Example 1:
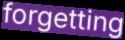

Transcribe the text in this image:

forgetting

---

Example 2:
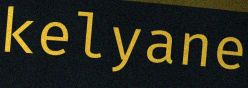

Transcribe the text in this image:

kelyane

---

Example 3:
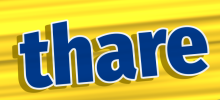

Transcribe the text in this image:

thare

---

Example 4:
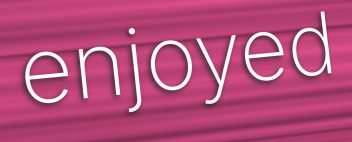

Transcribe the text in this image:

enjoyed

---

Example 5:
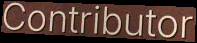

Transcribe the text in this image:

Contributor